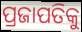
ପ୍ରଜାପତିକୁ